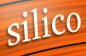
silico